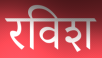
रविश